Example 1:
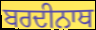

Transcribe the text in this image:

ਬਰਦੀਨਾਥ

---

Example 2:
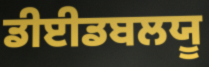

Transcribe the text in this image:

ਡੀਈਡਬਲਯੂ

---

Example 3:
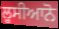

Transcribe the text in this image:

ਲੂਸੀਆਨੋ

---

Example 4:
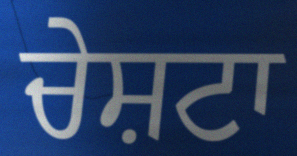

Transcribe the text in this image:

ਚੇਸ਼ਟਾ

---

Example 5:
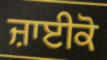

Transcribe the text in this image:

ਜ਼ਾਈਕੋ